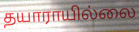
தயாராயில்லை